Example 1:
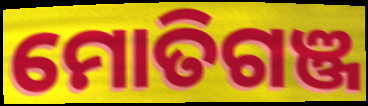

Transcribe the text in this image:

ମୋତିଗଞ୍ଜ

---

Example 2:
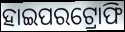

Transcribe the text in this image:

ହାଇପରଟ୍ରୋଫି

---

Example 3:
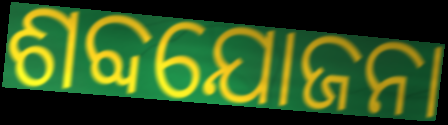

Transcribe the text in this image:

ଶବ୍ଦଯୋଜନା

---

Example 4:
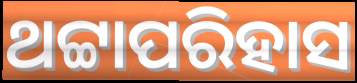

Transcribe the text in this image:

ଥଟ୍ଟାପରିହାସ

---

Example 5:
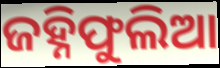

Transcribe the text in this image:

ଜହ୍ନିଫୁଲିଆ